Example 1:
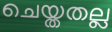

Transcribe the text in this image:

ചെയ്തതല്ല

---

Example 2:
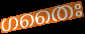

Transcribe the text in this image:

ഗതൈഃ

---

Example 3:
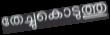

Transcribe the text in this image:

തേച്ചുകൊടുത്തു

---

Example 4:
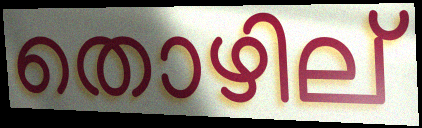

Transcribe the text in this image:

തൊഴില്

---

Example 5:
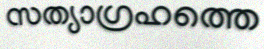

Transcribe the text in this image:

സത്യാഗ്രഹത്തെ